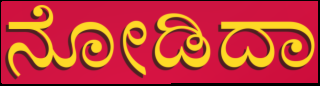
ನೋಡಿದಾ